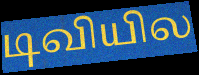
டிவியில